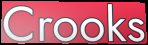
Crooks